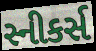
સ્નીકર્સ